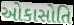
ઓકાસોતિ